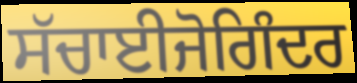
ਸੱਚਾਈਜੋਗਿੰਦਰ